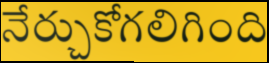
నేర్చుకోగలిగింది